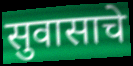
सुवासाचे